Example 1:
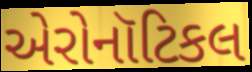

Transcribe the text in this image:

એરોનૉટિકલ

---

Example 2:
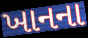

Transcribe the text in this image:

ખાનના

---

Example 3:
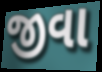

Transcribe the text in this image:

જીવા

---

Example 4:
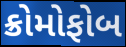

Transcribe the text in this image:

ક્રોમોફોબ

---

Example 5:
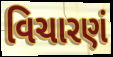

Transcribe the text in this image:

વિચારણં